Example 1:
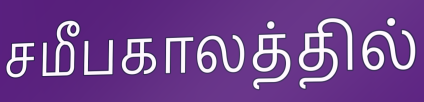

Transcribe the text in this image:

சமீபகாலத்தில்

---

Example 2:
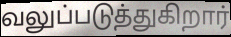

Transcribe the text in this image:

வலுப்படுத்துகிறார்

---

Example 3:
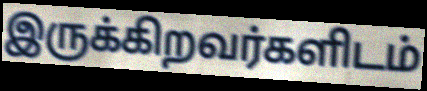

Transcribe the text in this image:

இருக்கிறவர்களிடம்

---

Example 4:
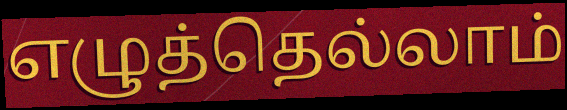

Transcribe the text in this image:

எழுத்தெல்லாம்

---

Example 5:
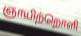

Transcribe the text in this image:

ஞாயிற்றொளி